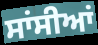
ਸਾਂਸੀਆਂ